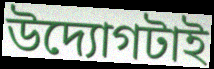
উদ্যোগটাই